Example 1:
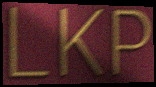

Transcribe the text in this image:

LKP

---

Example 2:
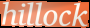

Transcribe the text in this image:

hillock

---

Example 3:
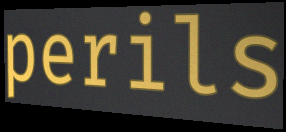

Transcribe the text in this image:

perils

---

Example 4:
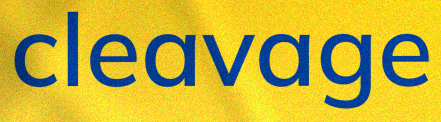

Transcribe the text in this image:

cleavage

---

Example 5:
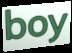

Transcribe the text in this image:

boy